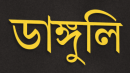
ডাঙ্গুলি